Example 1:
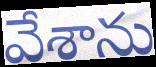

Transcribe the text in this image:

వేశాను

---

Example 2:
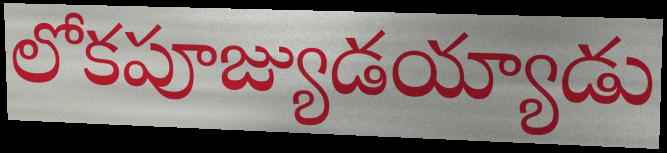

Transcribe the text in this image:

లోకపూజ్యుడయ్యాడు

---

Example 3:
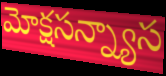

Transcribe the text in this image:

మోక్షసన్న్యాస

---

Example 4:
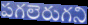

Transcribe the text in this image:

పగలెరుగని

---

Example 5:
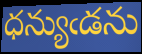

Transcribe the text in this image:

ధన్యుఁడను